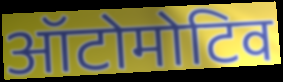
ऑटोमोटिव